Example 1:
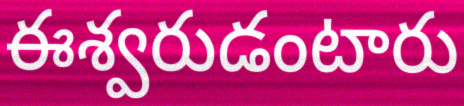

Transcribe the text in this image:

ఈశ్వరుడంటారు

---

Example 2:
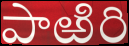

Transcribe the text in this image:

పాఱిరి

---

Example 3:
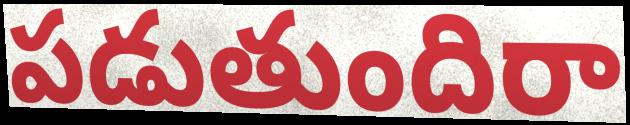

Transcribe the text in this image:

పడుతుందిరా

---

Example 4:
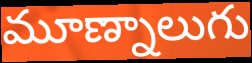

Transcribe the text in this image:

మూణ్నాలుగు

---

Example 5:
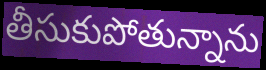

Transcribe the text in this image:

తీసుకుపోతున్నాను